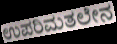
ಉಪರಿಮತಲೇನ